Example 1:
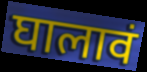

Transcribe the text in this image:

घालावं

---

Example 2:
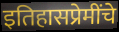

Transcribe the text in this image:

इतिहासप्रेमींचे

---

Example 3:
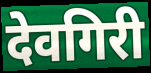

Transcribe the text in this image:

देवगिरी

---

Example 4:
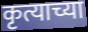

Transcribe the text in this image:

कृत्याच्या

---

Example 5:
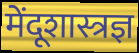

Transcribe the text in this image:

मेंदूशास्त्रज्ञ